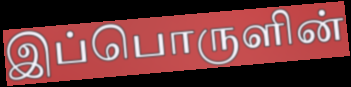
இப்பொருளின்